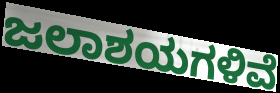
ಜಲಾಶಯಗಳಿವೆ